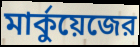
মার্কুয়েজের